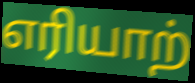
எரியாற்